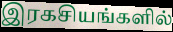
இரகசியங்களில்